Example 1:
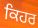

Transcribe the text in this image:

ਕਿਹਰ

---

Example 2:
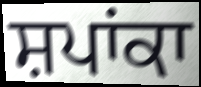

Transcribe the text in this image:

ਸ਼ਪਾਂਕਾ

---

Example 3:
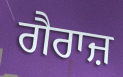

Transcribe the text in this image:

ਗੈਰਾਜ਼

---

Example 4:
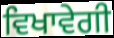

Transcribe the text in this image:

ਵਿਖਾਵੇਗੀ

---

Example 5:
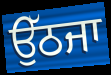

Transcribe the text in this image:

ਉੱਠਜਾ